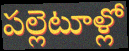
పల్లెటూళ్లో